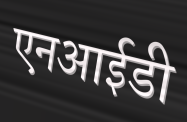
एनआईडी